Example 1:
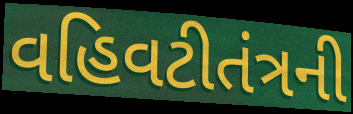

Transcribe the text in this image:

વહિવટીતંત્રની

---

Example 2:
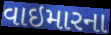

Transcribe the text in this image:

વાઇમારના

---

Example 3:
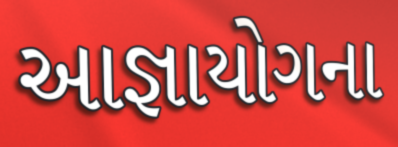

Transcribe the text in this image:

આજ્ઞાયોગના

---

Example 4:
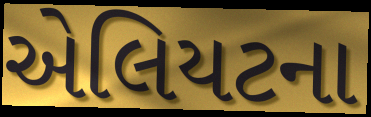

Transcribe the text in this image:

એલિયટના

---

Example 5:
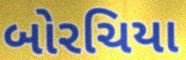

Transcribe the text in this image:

બોરચિયા